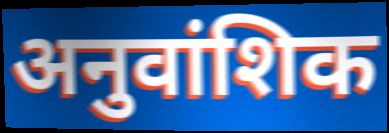
अनुवांशिक